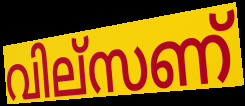
വില്സണ്